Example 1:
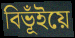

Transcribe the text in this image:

বিভূঁইয়ে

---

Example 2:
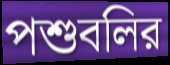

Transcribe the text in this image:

পশুবলির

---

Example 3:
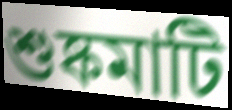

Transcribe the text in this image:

শুষ্কমাটি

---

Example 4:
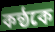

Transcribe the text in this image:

কন্ঠকে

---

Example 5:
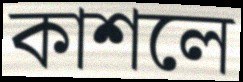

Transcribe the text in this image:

কাশলে